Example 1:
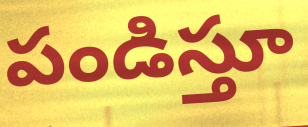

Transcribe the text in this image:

పండిస్తూ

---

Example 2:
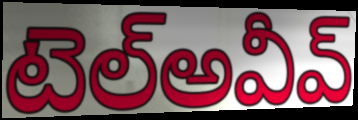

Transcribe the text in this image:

టెల్అవీవ్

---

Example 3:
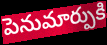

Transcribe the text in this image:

పెనుమార్పుకి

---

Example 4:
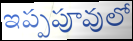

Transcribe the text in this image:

ఇప్పపూవులో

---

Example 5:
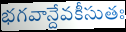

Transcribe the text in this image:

భగవాన్దేవకీసుతః